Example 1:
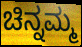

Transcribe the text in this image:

ಚಿನ್ನಮ್ಮ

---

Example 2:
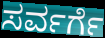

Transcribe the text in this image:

ಸರ್ವರ್ಗೆ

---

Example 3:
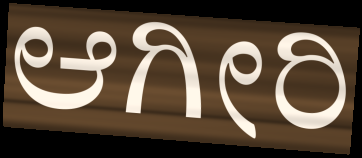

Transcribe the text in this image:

ಆಗೀರಿ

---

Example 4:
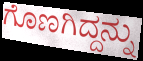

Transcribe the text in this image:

ಗೊಣಗಿದ್ದನ್ನು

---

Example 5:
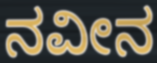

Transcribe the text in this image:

ನವೀನ